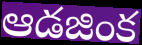
ఆడజింక